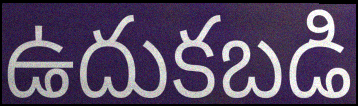
ఉదుకబడి